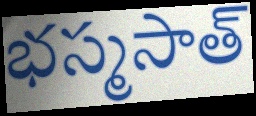
భస్మసాత్